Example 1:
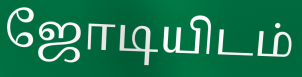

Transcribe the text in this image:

ஜோடியிடம்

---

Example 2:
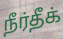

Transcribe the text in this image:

நீர்தீக்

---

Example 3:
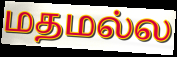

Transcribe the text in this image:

மதமல்ல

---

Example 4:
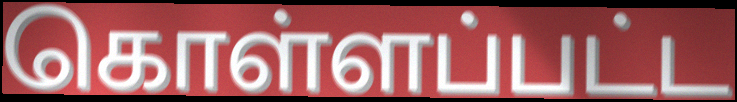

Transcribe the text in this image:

கொள்ளப்பட்ட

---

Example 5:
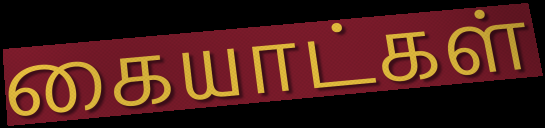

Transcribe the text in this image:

கையாட்கள்